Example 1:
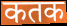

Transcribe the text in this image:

कतक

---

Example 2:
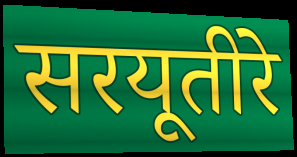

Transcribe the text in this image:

सरयूतीरे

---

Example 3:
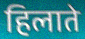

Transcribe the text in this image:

हिलाते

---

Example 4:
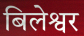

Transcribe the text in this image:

बिलेश्वर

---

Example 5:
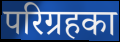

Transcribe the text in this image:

परिग्रहका